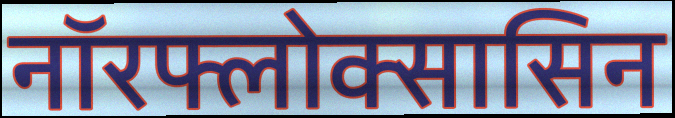
नॉरफ्लोक्सासिन